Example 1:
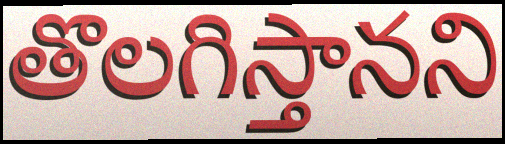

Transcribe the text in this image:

తొలగిస్తానని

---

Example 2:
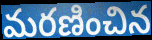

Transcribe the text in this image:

మరణించిన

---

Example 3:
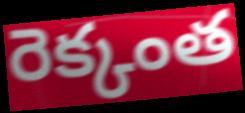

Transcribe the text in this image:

రెక్కంత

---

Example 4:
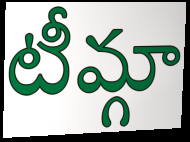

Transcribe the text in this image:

టీమ్గా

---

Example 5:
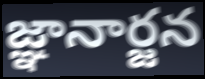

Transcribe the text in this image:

జ్ఞానార్జన